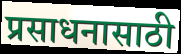
प्रसाधनासाठी